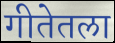
गीतेतला